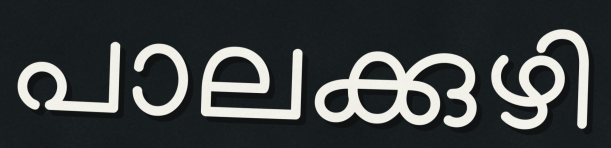
പാലക്കുഴി